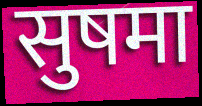
सुषमा